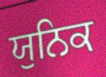
ਯੁਨਿਕ